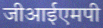
जीआईएमपी